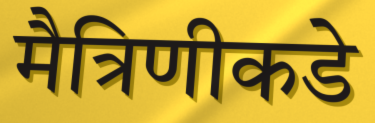
मैत्रिणीकडे